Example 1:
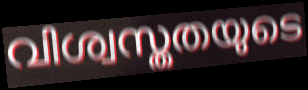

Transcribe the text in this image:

വിശ്വസ്തതയുടെ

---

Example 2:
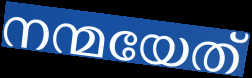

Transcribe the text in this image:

നന്മയേത്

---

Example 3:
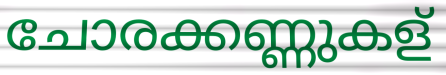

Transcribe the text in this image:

ചോരക്കണ്ണുകള്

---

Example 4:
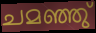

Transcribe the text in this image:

ചമഞ്ഞു്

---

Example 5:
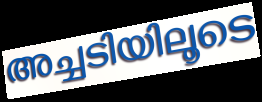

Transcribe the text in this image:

അച്ചടിയിലൂടെ